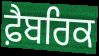
ਫ਼ੈਬਰਿਕ